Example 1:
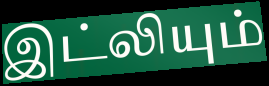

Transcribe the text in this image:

இட்லியும்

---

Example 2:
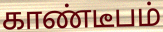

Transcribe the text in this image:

காண்டீபம்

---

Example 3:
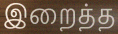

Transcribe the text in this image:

இறைத்த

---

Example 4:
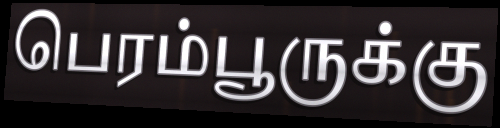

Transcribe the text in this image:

பெரம்பூருக்கு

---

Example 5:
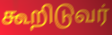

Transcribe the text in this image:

கூறிடுவர்